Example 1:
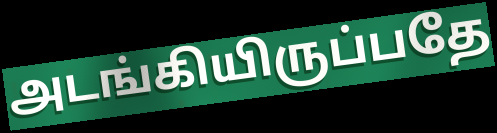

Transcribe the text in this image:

அடங்கியிருப்பதே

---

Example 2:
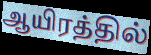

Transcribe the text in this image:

ஆயிரத்தில்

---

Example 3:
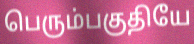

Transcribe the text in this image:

பெரும்பகுதியே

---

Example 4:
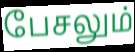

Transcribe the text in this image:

பேசலும்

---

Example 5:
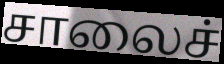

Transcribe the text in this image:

சாலைச்